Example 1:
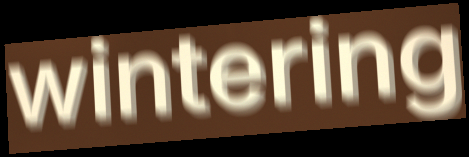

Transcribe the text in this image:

wintering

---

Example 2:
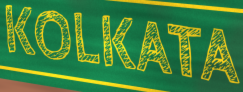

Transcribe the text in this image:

KOLKATA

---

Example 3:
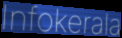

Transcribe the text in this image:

Infokerala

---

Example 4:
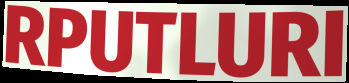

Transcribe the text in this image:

RPUTLURI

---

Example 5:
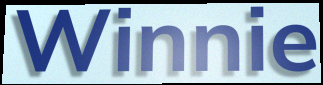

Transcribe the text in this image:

Winnie